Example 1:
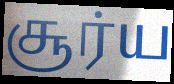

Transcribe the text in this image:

சூர்ய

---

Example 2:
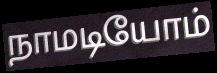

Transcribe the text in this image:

நாமடியோம்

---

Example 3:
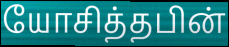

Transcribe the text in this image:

யோசித்தபின்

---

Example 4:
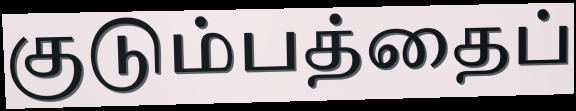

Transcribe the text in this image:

குடும்பத்தைப்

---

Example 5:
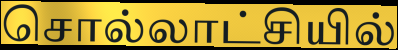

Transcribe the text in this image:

சொல்லாட்சியில்